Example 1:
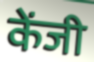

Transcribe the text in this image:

केंजी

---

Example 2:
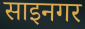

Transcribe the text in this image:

साइनगर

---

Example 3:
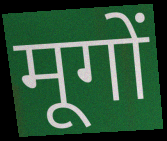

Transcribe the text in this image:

मूगों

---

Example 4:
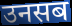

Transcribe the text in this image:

उनसब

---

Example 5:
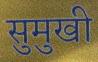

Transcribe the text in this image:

सुमुखी